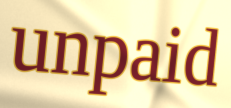
unpaid